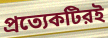
প্রত্যেকটিরই